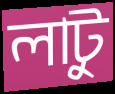
লাটু